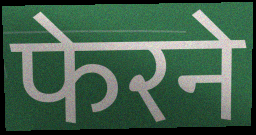
फेरने